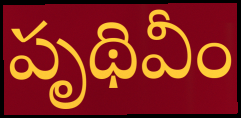
పృథివీం